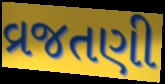
વ્રજતણી